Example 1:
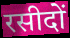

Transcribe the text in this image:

रसीदों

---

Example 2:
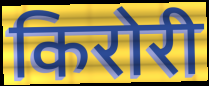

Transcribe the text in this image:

किरोरी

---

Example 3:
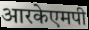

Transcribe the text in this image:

आरकेएमपी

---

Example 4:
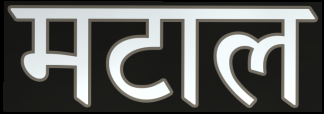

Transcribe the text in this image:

मटाल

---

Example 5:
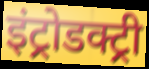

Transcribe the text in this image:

इंट्रोडक्ट्री